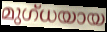
മുഗ്ധയായ